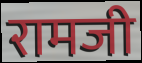
रामजी